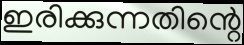
ഇരിക്കുന്നതിന്റെ